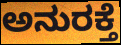
ಅನುರಕ್ತೆ